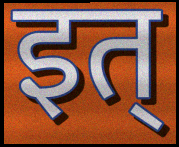
इत्